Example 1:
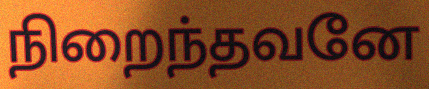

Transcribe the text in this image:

நிறைந்தவனே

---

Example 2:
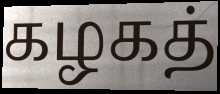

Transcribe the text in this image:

கழகத்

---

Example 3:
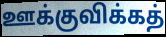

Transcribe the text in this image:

ஊக்குவிக்கத்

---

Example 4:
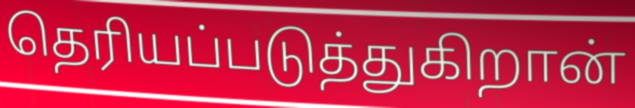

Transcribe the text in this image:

தெரியப்படுத்துகிறான்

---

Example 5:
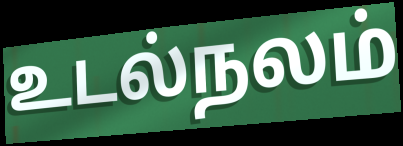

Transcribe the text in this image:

உடல்நலம்